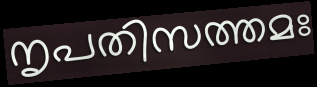
നൃപതിസത്തമഃ